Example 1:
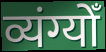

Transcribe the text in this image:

व्यंग्योँ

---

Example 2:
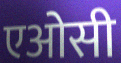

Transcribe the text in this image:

एओसी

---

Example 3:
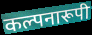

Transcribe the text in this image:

कल्पनारूपी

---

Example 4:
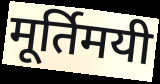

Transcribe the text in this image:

मूर्तिमयी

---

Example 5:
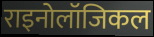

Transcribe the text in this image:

राइनोलॉजिकल